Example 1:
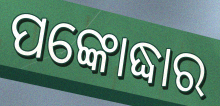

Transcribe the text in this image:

ପଙ୍କୋଦ୍ଧାର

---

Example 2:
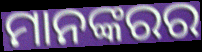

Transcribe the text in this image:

ମାନଙ୍କରର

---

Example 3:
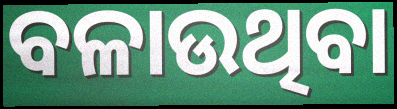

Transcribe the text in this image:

ବଳାଉଥିବା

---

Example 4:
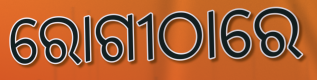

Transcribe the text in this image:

ରୋଗୀଠାରେ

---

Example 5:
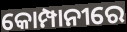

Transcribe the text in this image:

କୋମ୍ପାନୀରେ